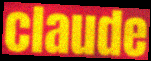
claude